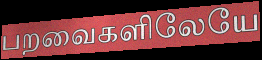
பறவைகளிலேயே